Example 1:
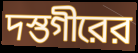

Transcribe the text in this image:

দস্তগীরের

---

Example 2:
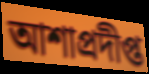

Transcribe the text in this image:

আশাপ্রদীপ্ত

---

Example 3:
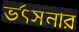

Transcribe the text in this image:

র্ভৎসনার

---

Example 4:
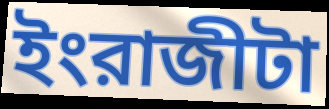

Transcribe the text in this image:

ইংরাজীটা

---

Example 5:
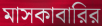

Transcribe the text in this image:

মাসকাবারির